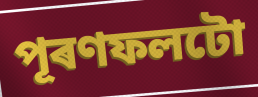
পূৰণফলটো